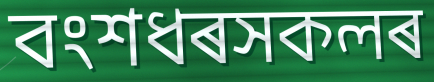
বংশধৰসকলৰ